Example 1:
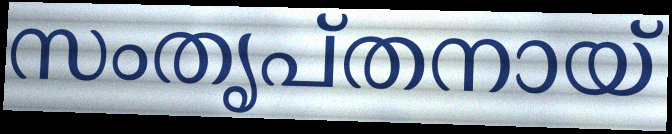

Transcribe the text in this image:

സംതൃപ്തനായ്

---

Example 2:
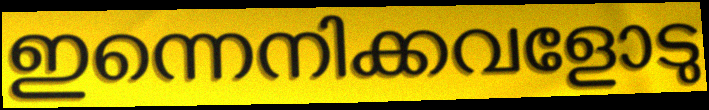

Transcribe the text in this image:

ഇന്നെനിക്കവളോടു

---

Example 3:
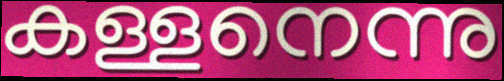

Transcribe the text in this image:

കള്ളനെന്നു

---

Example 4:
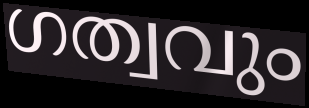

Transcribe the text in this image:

ഗത്വവും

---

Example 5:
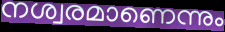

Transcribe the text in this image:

നശ്വരമാണെന്നും